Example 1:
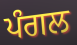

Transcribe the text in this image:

ਪੰਗਲ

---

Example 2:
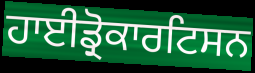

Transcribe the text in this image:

ਹਾਈਡ੍ਰੋਕਾਰਟਿਸਨ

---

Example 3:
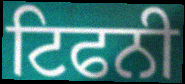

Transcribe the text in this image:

ਟਿਫਨੀ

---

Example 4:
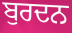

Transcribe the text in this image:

ਬੁਰਦਨ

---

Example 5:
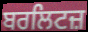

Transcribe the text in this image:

ਬਰਲਿਟਜ਼